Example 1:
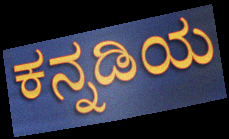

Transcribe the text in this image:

ಕನ್ನಡಿಯ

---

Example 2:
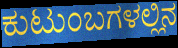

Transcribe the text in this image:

ಕುಟುಂಬಗಳಲ್ಲಿನ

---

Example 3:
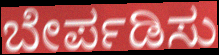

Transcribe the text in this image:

ಬೇರ್ಪಡಿಸು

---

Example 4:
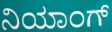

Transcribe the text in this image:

ನಿಯಾಂಗ್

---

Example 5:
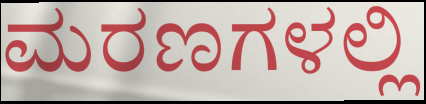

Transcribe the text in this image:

ಮರಣಗಳಲ್ಲಿ